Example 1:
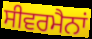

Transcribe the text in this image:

ਸੀਵਰਮੈਨਾਂ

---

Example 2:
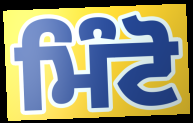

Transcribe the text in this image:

ਮਿੰਟੋ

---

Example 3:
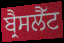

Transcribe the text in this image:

ਬ੍ਰੈਸਲੈੱਟ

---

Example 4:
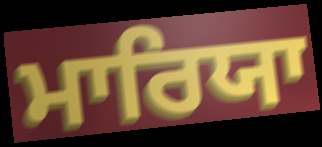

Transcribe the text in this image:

ਮਾਰਿਯਾ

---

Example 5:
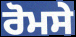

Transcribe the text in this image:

ਰੋਮਸੇ